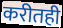
करीतही